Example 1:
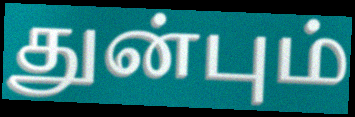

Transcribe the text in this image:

துன்பும்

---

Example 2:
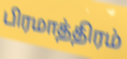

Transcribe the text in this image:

பிரமாத்திரம்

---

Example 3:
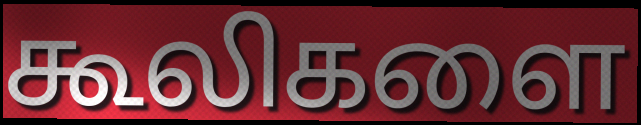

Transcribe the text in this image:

கூலிகளை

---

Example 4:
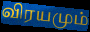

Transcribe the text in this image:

விரயமும்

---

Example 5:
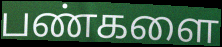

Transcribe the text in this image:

பண்களை